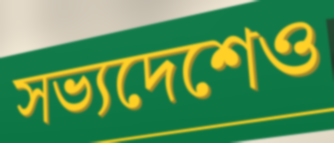
সভ্যদেশেও